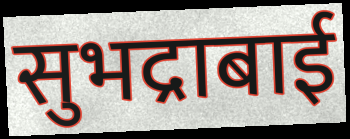
सुभद्राबाई